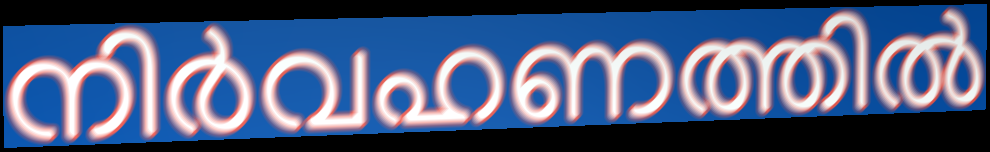
നിർവഹണത്തിൽ